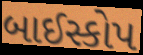
બાઈસ્કોપ